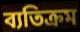
ব্যতিক্ৰম